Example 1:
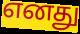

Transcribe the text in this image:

எனது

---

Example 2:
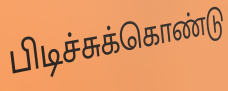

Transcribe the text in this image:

பிடிச்சுக்கொண்டு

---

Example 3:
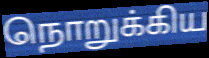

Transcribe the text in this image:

நொறுக்கிய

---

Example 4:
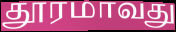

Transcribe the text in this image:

தூரமாவது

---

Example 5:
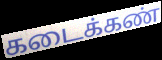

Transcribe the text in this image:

கடைக்கண்